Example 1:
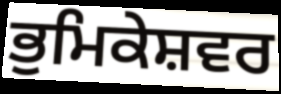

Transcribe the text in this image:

ਭੁਮਿਕੇਸ਼ਵਰ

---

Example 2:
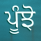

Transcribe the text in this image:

ਪੂੰਝੋ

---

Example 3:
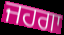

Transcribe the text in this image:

ਜਹਗਾ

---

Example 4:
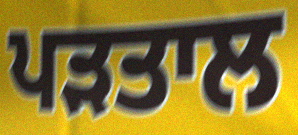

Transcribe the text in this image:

ਪੜਤਾਲ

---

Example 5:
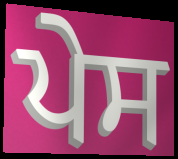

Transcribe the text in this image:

ਪੇਸ